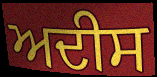
ਅਦੀਸ